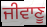
ਜੀਵਾਣੂ